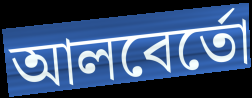
আলবের্তো